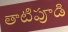
తాటిపూడి